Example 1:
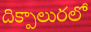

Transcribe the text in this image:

దిక్పాలురలో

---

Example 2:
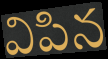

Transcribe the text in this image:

విపిన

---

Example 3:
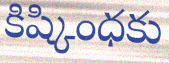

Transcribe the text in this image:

కిష్కింధకు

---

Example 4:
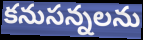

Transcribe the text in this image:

కనుసన్నలను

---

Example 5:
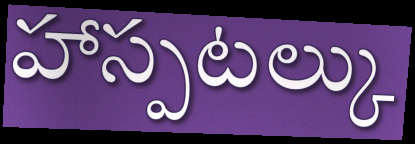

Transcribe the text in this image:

హాస్పటల్కు